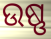
ଉଷ୍ଣ